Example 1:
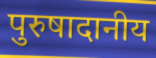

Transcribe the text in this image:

पुरुषादानीय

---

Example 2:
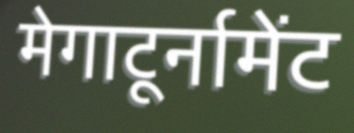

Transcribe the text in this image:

मेगाटूर्नामेंट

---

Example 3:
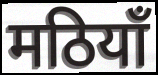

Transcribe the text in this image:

मठियाँ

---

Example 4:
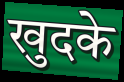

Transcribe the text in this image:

खुदके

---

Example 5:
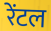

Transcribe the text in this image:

रेंटल